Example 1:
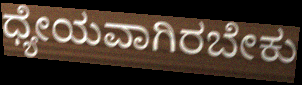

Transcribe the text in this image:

ಧ್ಯೇಯವಾಗಿರಬೇಕು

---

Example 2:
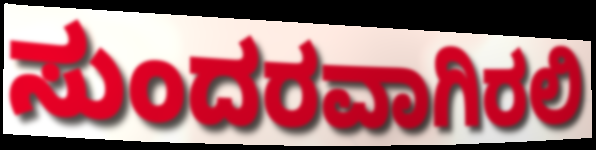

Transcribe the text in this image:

ಸುಂದರವಾಗಿರಲಿ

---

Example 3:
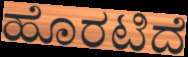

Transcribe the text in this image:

ಹೊರಟಿದೆ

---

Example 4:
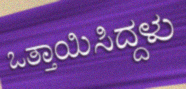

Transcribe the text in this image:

ಒತ್ತಾಯಿಸಿದ್ದಳು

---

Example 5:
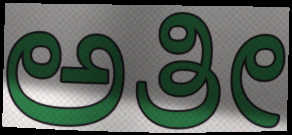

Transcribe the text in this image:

ಅತೀ